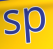
sp